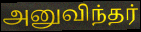
அனுவிந்தர்